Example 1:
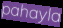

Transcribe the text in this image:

pahayla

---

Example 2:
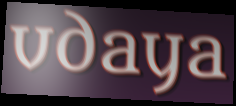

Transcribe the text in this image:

udaya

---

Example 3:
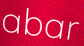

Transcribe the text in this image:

abar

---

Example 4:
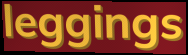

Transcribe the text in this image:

leggings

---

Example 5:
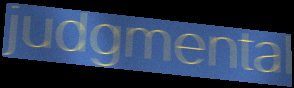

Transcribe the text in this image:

judgmental